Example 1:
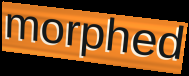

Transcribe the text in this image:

morphed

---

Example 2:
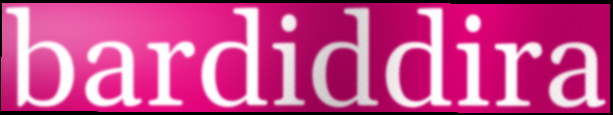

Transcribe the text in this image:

bardiddira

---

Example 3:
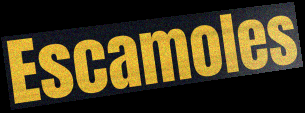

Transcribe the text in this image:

Escamoles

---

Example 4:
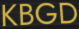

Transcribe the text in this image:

KBGD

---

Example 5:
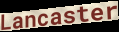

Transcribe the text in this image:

Lancaster